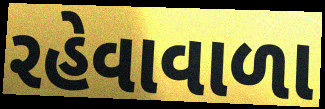
રહેવાવાળા